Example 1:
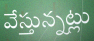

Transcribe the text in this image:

వేస్తున్నట్లు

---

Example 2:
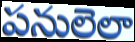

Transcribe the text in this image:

పనులెలా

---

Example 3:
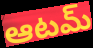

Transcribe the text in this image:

ఆటమ్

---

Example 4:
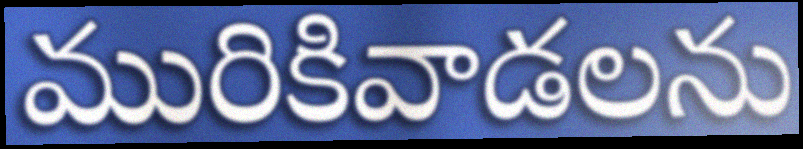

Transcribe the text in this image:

మురికివాడలను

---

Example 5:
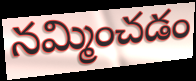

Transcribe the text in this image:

నమ్మించడం